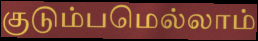
குடும்பமெல்லாம்